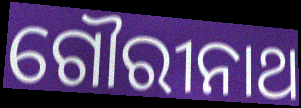
ଗୌରୀନାଥ